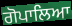
ਗੋਪਾਲਿਆ